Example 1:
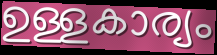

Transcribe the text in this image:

ഉള്ളകാര്യം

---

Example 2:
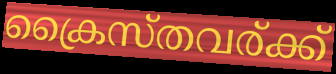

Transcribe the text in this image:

ക്രൈസ്തവര്ക്ക്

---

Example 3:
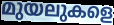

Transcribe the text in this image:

മുയലുകളെ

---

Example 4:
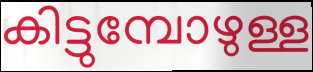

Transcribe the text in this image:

കിട്ടുമ്പോഴുള്ള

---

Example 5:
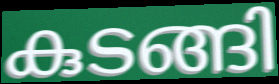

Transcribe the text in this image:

കുടങ്ങി